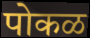
पोकळ